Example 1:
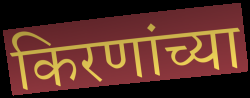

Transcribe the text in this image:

किरणांच्या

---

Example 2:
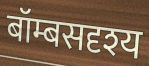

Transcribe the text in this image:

बॉम्बसदृश्य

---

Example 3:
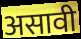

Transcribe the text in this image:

असावी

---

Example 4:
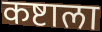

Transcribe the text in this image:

कष्टाला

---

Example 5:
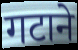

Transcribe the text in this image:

गटाने